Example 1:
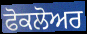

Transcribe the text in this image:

ਫੋਕਲੋਅਰ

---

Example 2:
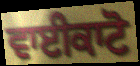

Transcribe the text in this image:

ਵਾਈਕਾਟੋ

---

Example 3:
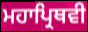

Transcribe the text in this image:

ਮਹਾਪ੍ਰਿਥਵੀ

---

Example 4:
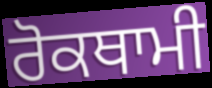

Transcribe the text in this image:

ਰੋਕਥਾਮੀ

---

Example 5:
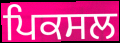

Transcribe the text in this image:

ਪਿਕਸਲ